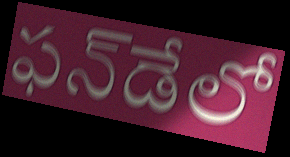
ఫన్‌డేలో